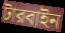
টারবাইন